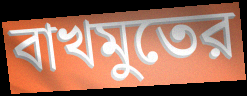
বাখমুতের